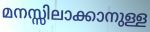
മനസ്സിലാക്കാനുള്ള